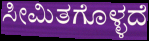
ಸೀಮಿತಗೊಳ್ಳದೆ